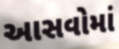
આસવોમાં